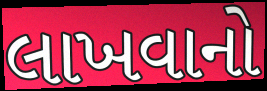
લાખવાનો